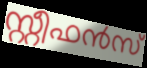
സ്റ്റീഫൻസ്